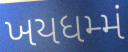
ખયધમ્મં